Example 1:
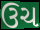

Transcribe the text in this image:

ઉચ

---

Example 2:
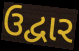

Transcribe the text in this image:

ઉદ્વાર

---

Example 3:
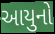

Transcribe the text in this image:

આયુનો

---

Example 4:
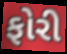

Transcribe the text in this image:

ફોરી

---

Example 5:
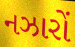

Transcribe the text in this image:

નઝારોં